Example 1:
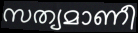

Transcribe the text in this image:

സത്യമാണീ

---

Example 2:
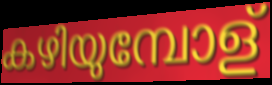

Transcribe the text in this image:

കഴിയുമ്പോള്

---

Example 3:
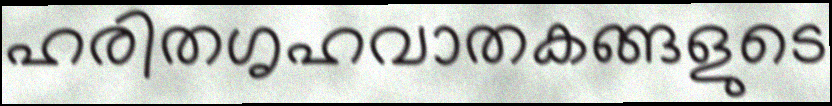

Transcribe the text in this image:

ഹരിതഗൃഹവാതകങ്ങളുടെ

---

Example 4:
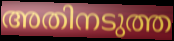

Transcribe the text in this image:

അതിനടുത്ത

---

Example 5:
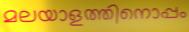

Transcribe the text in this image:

മലയാളത്തിനൊപ്പം